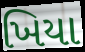
ખિયા